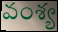
వంశ్య